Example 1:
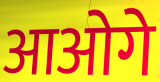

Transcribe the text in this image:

आओगे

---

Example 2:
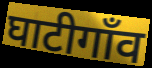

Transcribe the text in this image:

घाटीगाँव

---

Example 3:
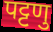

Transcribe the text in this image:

पट्टणु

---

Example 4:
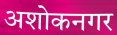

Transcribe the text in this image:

अशोकनगर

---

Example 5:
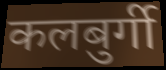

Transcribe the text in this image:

कलबुर्गी